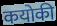
कयोकी